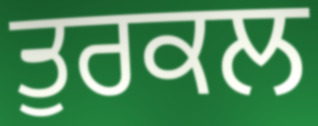
ਤੁਰਕਲ